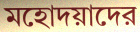
মহোদয়াদের